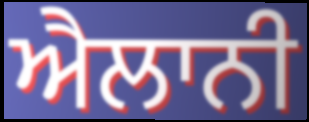
ਐਲਾਨੀ